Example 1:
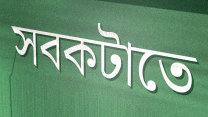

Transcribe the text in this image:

সবকটাতে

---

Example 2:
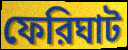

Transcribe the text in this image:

ফেরিঘাট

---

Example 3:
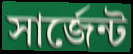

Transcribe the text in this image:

সার্জেন্ট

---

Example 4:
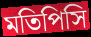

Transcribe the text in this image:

মতিপিসি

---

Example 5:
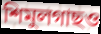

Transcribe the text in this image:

শিমুলগাছও